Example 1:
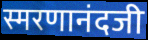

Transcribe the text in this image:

स्मरणानंदजी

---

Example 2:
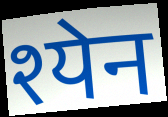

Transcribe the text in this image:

श्येन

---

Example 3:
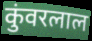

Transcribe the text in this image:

कुंवरलाल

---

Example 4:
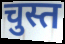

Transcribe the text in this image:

चुस्त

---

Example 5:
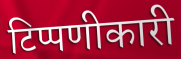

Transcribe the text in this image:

टिप्पणीकारी